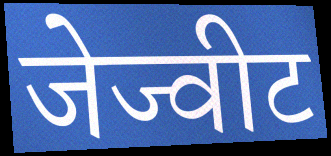
जेज्वीट